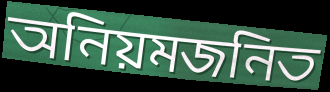
অনিয়মজনিত